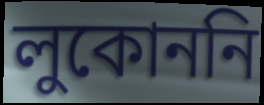
লুকোননি